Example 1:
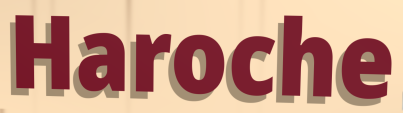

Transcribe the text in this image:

Haroche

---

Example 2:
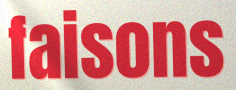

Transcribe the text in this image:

faisons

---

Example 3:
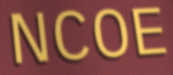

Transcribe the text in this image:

NCOE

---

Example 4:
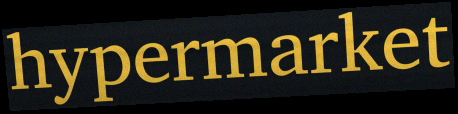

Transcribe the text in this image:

hypermarket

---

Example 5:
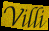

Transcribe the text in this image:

Villi